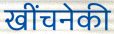
खींचनेकी